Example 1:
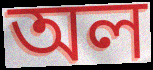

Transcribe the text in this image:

অল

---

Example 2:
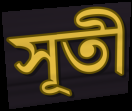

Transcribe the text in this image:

সূতী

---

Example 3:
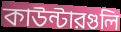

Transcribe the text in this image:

কাউন্টারগুলি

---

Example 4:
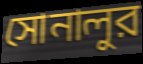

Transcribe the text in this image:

সোনালুর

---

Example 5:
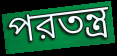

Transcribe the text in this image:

পরতন্ত্র